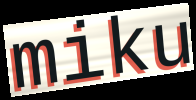
miku